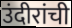
उंदीरांची